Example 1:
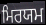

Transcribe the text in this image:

ਮਿਰਯਮ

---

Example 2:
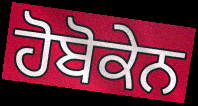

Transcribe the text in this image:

ਹੋਬੋਕੇਨ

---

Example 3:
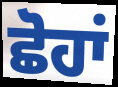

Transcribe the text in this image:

ਛੋਹਾਂ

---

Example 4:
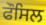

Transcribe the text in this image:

ਫੌਸਿਲ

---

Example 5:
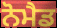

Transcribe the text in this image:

ਨੋਮੈਡ